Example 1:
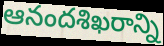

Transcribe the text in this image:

ఆనందశిఖరాన్ని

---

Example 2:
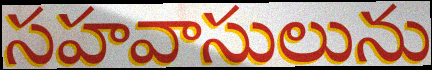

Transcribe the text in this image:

సహవాసులును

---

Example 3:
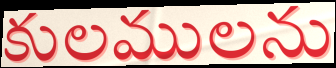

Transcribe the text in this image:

కులములను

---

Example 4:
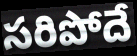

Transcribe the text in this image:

సరిపోదే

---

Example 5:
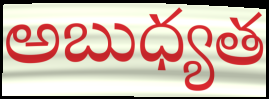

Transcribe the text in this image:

అబుధ్యత